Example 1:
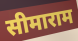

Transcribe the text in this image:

सीमाराम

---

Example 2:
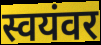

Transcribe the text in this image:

स्वयंवर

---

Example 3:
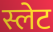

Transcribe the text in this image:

स्लेट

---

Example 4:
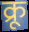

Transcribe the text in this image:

क्रू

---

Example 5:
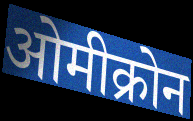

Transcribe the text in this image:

ओमीक्रोन